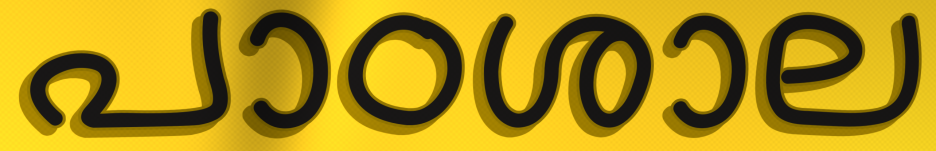
പാഠശാല